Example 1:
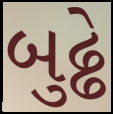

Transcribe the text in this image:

બુઢ્ઢે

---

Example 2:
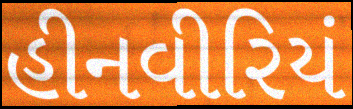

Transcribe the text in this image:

હીનવીરિયં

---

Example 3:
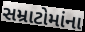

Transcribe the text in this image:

સમ્રાટોમાંના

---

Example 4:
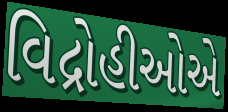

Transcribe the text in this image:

વિદ્રોહીઓએ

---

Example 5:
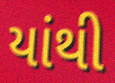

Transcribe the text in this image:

યાંથી